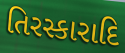
તિરસ્કારાદિ